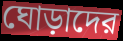
ঘোড়াদের